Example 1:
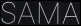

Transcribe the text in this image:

SAMA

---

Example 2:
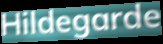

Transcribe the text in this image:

Hildegarde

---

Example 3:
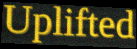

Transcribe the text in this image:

Uplifted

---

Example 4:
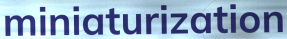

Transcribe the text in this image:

miniaturization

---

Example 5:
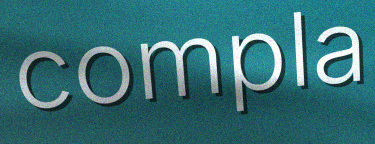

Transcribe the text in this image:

compla